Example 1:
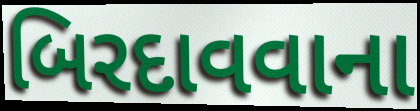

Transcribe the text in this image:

બિરદાવવાના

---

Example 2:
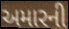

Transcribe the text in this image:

અમારની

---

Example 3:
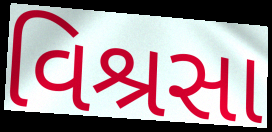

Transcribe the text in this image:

વિશ્રસા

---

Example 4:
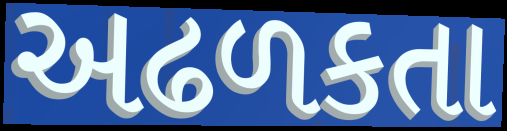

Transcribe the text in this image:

અઢળકતા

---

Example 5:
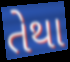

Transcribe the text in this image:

તેથા